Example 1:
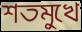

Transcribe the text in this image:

শতমুখে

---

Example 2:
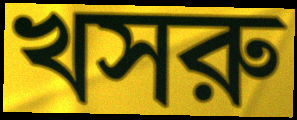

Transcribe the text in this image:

খসরু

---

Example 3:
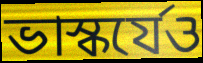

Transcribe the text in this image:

ভাস্কর্যেও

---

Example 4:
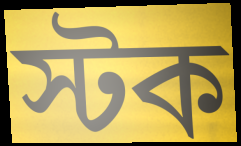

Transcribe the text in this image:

স্টক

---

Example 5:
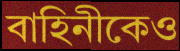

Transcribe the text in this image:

বাহিনীকেও